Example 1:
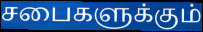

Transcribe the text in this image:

சபைகளுக்கும்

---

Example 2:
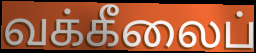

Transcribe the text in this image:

வக்கீலைப்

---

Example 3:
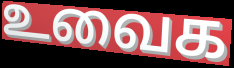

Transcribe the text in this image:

உவைக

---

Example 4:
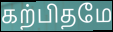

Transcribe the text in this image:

கற்பிதமே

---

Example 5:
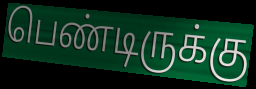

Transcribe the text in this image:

பெண்டிருக்கு